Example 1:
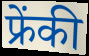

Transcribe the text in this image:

फ्रेंकी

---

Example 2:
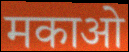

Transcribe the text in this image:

मकाओ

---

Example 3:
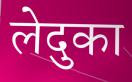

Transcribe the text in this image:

लेदुका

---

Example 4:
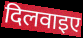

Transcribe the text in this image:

दिलवाइए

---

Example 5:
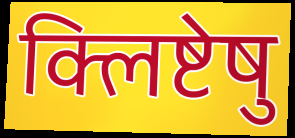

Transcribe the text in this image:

क्लिष्टेषु